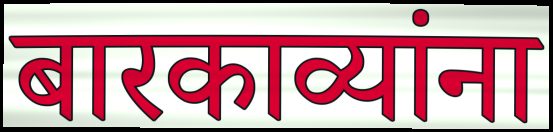
बारकाव्यांना